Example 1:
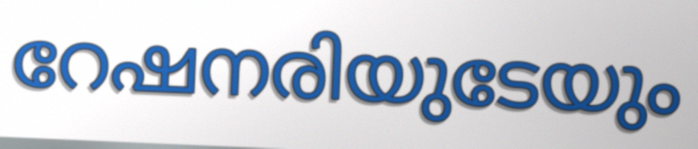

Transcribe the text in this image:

റേഷനരിയുടേയും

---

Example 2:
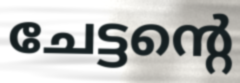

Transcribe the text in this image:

ചേട്ടന്റെ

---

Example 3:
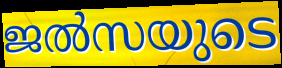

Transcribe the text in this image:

ജൽസയുടെ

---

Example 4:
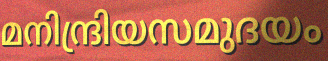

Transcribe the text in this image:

മനിന്ദ്രിയസമുദയം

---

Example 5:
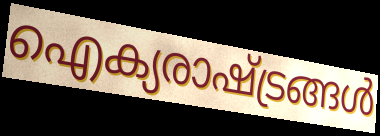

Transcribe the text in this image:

ഐക്യരാഷ്ട്രങ്ങൾ